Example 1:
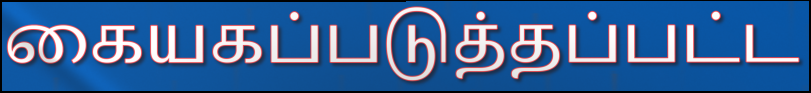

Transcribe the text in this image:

கையகப்படுத்தப்பட்ட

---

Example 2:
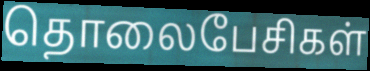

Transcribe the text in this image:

தொலைபேசிகள்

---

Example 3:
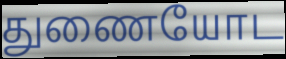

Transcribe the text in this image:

துணையோட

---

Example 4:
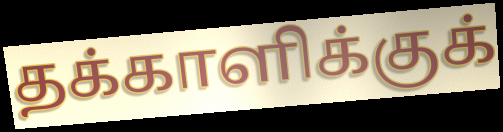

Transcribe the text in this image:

தக்காளிக்குக்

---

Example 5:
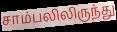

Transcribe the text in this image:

சாம்பலிலிருந்து